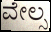
ವೇಲ್ಸ